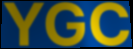
YGC